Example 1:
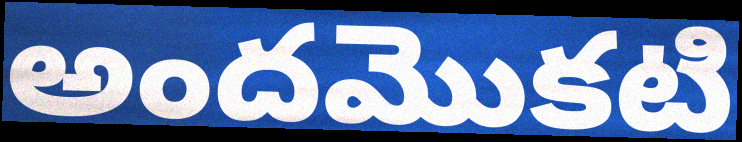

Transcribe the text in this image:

అందమొకటి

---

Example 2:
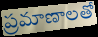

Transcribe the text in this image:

ప్రమాణాలతో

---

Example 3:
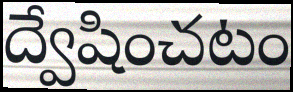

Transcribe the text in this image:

ద్వేషించటం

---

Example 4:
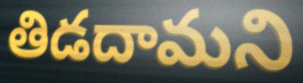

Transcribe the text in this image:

తిడదామని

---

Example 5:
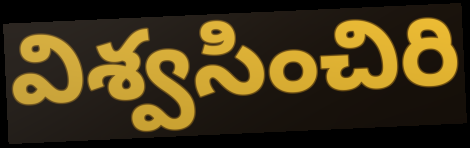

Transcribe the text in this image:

విశ్వసించిరి